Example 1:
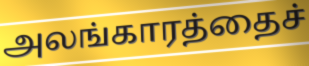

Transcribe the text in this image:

அலங்காரத்தைச்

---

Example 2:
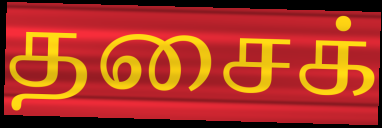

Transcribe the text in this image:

தசைக்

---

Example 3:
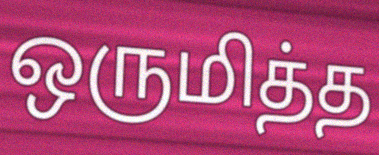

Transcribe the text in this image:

ஒருமித்த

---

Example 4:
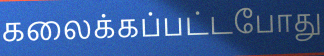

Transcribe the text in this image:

கலைக்கப்பட்டபோது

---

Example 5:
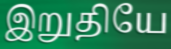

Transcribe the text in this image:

இறுதியே